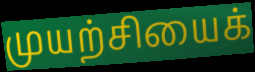
முயற்சியைக்